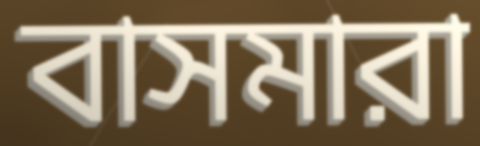
বাসমারা